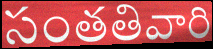
సంతతివారి